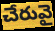
చేరువై